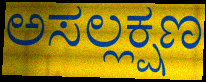
ಅಸಲ್ಲಕ್ಷಣ